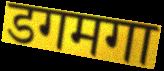
डगमगा